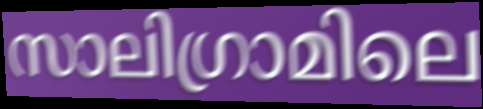
സാലിഗ്രാമിലെ